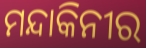
ମନ୍ଦାକିନୀର